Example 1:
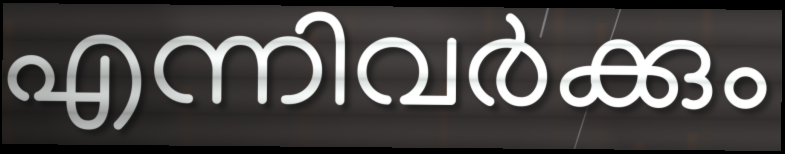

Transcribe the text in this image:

എന്നിവർക്കും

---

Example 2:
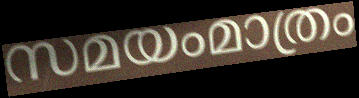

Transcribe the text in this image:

സമയംമാത്രം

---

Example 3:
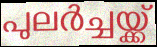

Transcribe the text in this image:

പുലർച്ചയ്ക്ക്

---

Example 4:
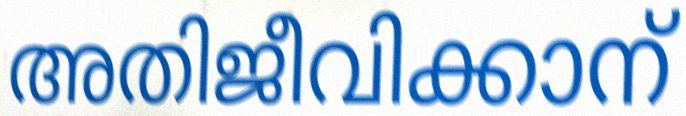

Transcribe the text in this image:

അതിജീവിക്കാന്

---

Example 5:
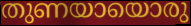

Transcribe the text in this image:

തുണയായൊരു